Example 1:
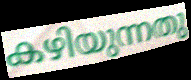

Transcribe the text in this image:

കഴിയുന്നതു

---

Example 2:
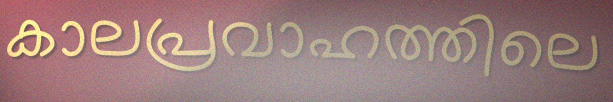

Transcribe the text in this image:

കാലപ്രവാഹത്തിലെ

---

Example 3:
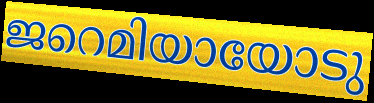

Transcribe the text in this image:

ജറെമിയായോടു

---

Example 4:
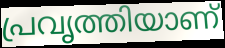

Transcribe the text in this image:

പ്രവൃത്തിയാണ്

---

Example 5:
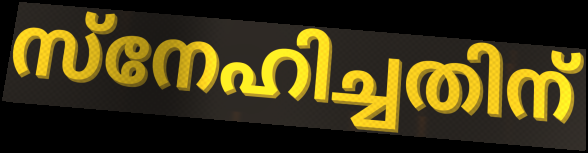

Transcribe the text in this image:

സ്നേഹിച്ചതിന്